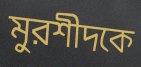
মুরশীদকে